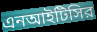
এনআইটিসির